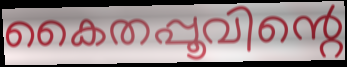
കൈതപ്പൂവിന്റെ